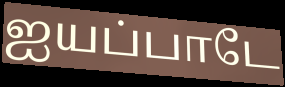
ஐயப்பாடே